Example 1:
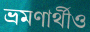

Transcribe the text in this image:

ভ্রমণার্থীও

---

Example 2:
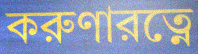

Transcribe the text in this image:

করুণারত্নে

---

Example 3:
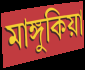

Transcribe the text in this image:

মাঙ্গুকিয়া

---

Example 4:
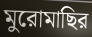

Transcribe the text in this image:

মুরোমাছির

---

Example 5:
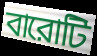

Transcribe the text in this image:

বারোটি